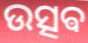
ଉତ୍ସଵ